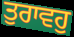
ਤੁਰਾਵਹੁ